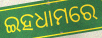
ଇହଧାମରେ